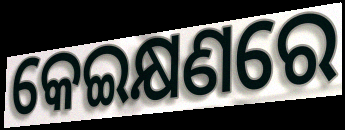
କେଇକ୍ଷଣରେ